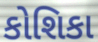
કોશિકા